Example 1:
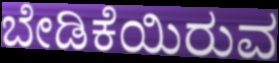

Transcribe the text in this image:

ಬೇಡಿಕೆಯಿರುವ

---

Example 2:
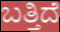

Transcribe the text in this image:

ಬತ್ತಿದೆ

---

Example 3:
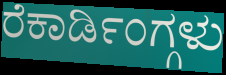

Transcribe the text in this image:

ರೆಕಾರ್ಡಿಂಗ್ಗಳು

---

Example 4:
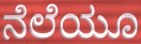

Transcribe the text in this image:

ನೆಲೆಯೂ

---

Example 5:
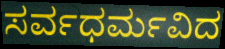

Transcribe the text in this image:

ಸರ್ವಧರ್ಮವಿದ